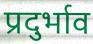
प्रदुर्भाव